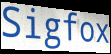
Sigfox